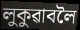
লুকুৱাবলৈ